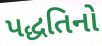
પદ્ધતિનો